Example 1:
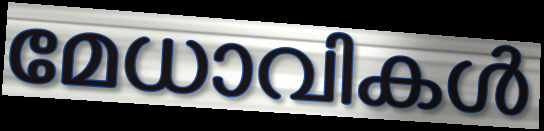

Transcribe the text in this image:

മേധാവികൾ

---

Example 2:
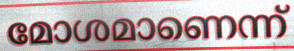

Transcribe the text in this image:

മോശമാണെന്ന്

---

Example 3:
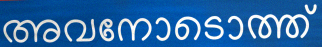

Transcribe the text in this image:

അവനോടൊത്ത്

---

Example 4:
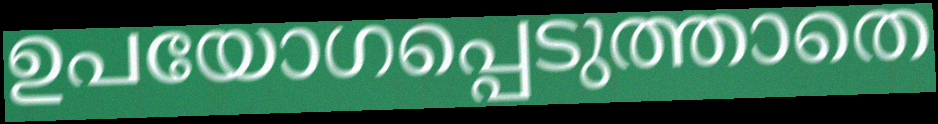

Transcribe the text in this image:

ഉപയോഗപ്പെടുത്താതെ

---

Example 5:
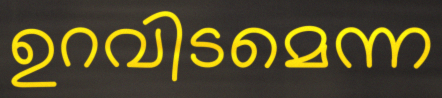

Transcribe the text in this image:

ഉറവിടമെന്ന